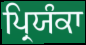
ਪ੍ਰਿਯੰਕਾ